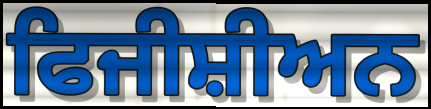
ਫਿਜੀਸ਼ੀਅਨ